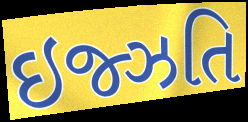
ઇજ્ઝતિ